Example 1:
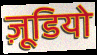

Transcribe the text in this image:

ज़ूडियो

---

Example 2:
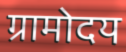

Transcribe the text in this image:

ग्रामोदय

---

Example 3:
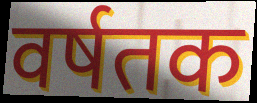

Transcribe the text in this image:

वर्षतक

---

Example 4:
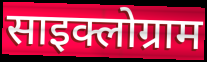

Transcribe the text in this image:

साइक्लोग्राम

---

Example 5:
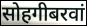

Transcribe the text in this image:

सोहगीबरवां